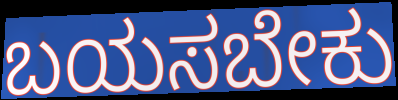
ಬಯಸಬೇಕು